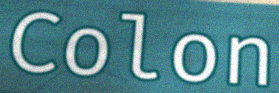
Colon